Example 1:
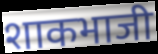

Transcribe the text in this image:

शाकभाजी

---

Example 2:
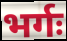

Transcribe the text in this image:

भर्गः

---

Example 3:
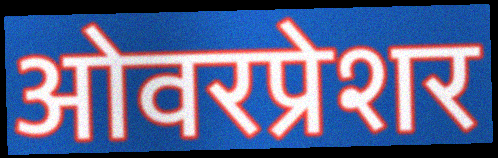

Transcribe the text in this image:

ओवरप्रेशर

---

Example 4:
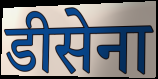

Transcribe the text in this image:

डीसेना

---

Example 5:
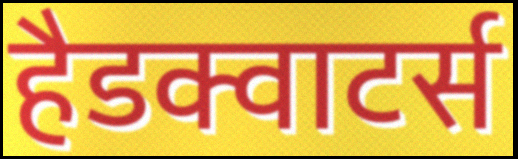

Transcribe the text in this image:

हैडक्वाटर्स